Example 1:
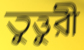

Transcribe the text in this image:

তুত্তুরী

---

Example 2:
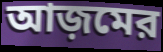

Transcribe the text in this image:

আজ়মের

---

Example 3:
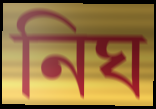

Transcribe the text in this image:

নিঘ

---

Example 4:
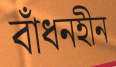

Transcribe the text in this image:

বাঁধনহীন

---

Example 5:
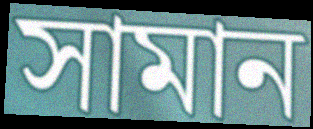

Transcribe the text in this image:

সামান